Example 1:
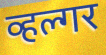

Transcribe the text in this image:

व्हल्गर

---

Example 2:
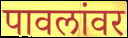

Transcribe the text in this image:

पावलांवर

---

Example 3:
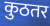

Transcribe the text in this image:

कुठतर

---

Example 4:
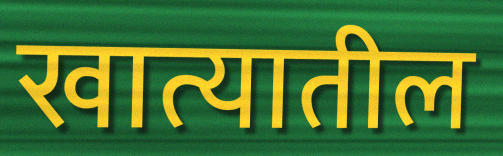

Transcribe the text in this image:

खात्यातील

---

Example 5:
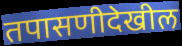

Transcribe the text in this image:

तपासणीदेखील